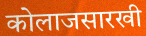
कोलाजसारखी